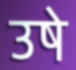
उषे